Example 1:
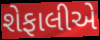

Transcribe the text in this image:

શેફાલીએ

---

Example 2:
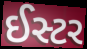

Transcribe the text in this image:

ઈસ્ટર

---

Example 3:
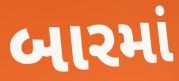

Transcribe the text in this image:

બારમાં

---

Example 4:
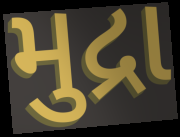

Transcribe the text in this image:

મુદ્રા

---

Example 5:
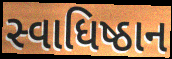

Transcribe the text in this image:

સ્વાધિષ્ઠાન